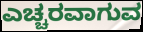
ಎಚ್ಚರವಾಗುವ